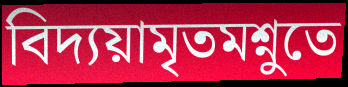
বিদ্যয়ামৃতমশ্নুতে